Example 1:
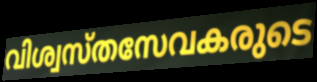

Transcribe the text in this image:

വിശ്വസ്തസേവകരുടെ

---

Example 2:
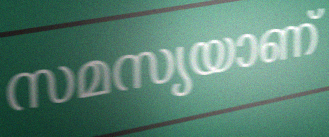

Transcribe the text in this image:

സമസ്യയാണ്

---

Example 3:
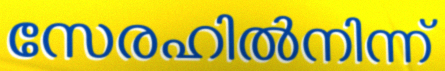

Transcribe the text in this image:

സേരഹിൽനിന്ന്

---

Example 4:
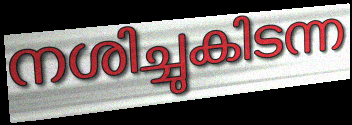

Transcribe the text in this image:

നശിച്ചുകിടന്ന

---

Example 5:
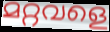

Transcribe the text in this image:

മറ്റവളെ